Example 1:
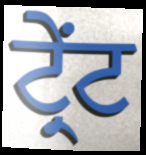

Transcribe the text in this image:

ਟ੍ਰੇਂਟ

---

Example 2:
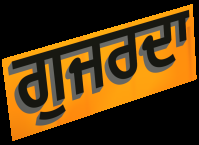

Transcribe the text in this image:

ਗੁਜਰਦਾ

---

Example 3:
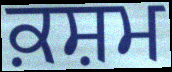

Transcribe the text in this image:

ਕ਼ਸ਼ਮ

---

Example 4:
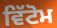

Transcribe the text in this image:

ਵਿੱਟੋਮ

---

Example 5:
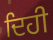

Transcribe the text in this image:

ਦਿਹੀ